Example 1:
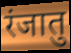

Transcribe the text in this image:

रंजातु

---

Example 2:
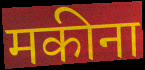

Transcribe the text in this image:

मकीना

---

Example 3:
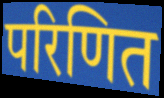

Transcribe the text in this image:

परिणित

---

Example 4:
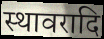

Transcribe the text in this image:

स्थावरादि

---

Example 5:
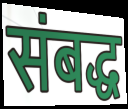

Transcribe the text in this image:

संबद्ध